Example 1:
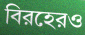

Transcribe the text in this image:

বিরহেরও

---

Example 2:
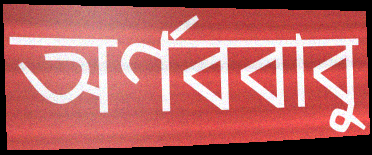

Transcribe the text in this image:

অর্ণববাবু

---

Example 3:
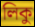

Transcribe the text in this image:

লিকু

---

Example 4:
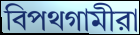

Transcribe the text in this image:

বিপথগামীরা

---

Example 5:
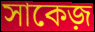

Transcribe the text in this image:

সাকেজ়